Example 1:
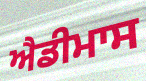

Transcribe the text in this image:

ਐਡੀਮਾਸ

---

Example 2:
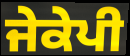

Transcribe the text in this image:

ਜੇਕੇਪੀ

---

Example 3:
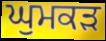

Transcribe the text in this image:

ਘੁਮਕੜ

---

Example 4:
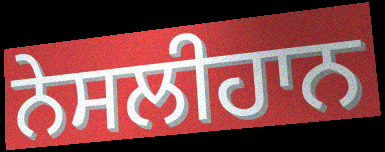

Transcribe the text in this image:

ਨੇਸਲੀਹਾਨ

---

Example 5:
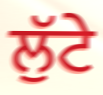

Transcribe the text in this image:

ਲੁੱਟੇ